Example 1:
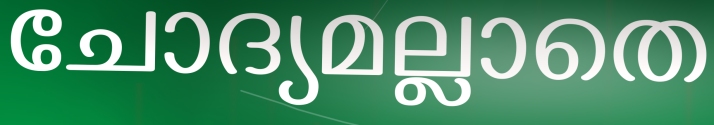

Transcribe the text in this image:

ചോദ്യമല്ലാതെ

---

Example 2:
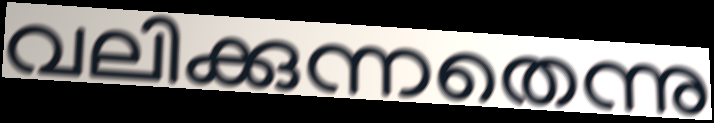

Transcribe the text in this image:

വലിക്കുന്നതെന്നു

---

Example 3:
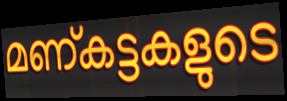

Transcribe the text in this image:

മണ്കട്ടകളുടെ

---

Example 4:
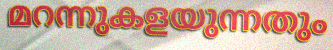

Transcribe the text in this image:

മറന്നുകളയുന്നതും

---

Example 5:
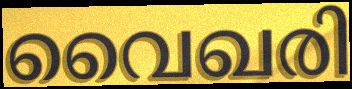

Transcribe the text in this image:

വൈഖരി